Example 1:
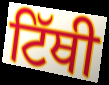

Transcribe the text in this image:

ਟਿੱਥੀ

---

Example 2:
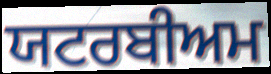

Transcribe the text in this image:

ਯਟਰਬੀਅਮ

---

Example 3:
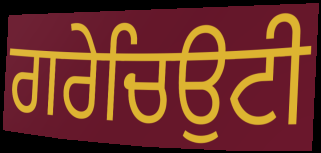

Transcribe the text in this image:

ਗਰੇਚਿਉਟੀ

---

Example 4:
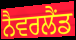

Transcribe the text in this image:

ਨੈਵਰਲੈਂਡ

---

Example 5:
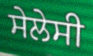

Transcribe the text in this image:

ਸੇਲੇਸੀ